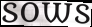
sows